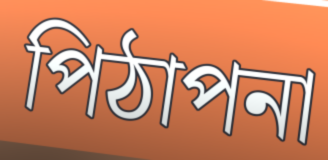
পিঠাপনা